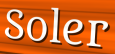
Soler